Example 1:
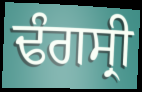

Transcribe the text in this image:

ਢੰਗਸ੍ਰੀ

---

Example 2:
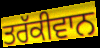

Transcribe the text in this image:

ਤਰੱਕੀਵਾਨ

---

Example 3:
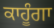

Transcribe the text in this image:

ਕਾਹੂੰਗਾ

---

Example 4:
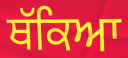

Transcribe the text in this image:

ਥੱਕਿਆ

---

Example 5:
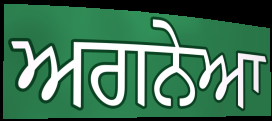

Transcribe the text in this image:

ਅਗਨੇਆ